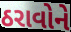
ઠરાવોને